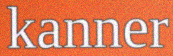
kanner